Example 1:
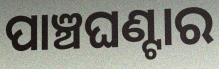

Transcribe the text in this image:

ପାଞ୍ଚଘଣ୍ଟାର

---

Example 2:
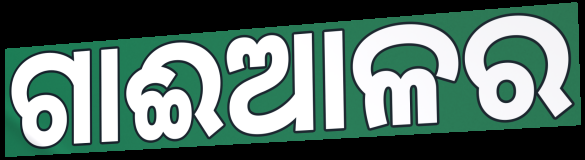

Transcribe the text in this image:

ଗାଈଆଳର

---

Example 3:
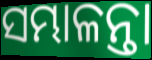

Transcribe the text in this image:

ସମ୍ଭାଳନ୍ତା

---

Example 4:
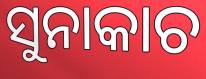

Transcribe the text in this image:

ସୁନାକାଚ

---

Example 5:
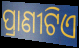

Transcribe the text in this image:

ପ୍ରାଣୀଟିଏ